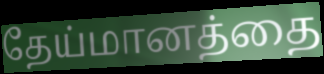
தேய்மானத்தை